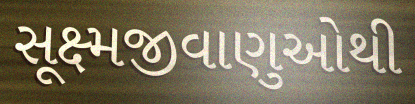
સૂક્ષ્મજીવાણુઓથી